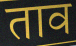
ताव